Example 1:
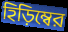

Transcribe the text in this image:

হিড়িম্বের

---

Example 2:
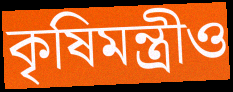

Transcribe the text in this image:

কৃষিমন্ত্রীও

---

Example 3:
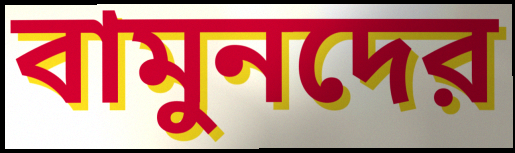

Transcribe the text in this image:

বামুনদের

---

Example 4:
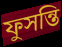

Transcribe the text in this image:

ফুসন্তি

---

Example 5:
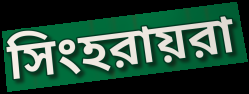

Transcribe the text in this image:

সিংহরায়রা